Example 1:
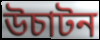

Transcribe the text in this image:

উচাটন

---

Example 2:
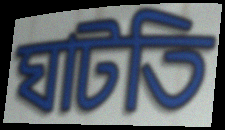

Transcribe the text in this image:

ঘাটতি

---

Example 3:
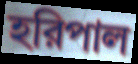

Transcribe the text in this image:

হরিপাল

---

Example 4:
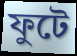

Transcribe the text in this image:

ফুটে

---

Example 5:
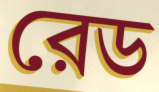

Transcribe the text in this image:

রেড